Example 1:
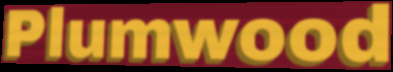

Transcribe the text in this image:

Plumwood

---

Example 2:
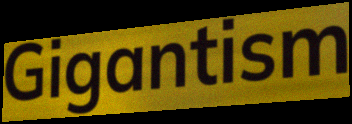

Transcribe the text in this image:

Gigantism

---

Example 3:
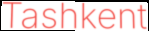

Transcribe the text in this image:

Tashkent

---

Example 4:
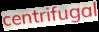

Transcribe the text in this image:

centrifugal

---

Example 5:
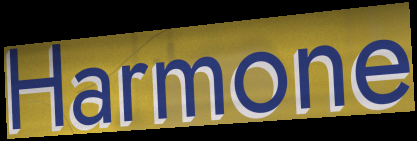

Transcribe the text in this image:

Harmone